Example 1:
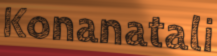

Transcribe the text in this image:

Konanatali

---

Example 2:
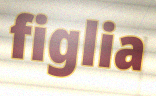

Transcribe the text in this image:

figlia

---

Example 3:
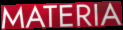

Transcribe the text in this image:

MATERIA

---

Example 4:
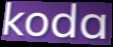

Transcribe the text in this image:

koda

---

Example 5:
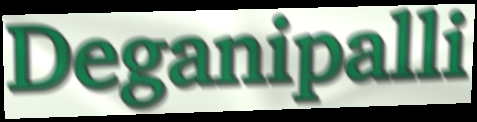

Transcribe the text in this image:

Deganipalli